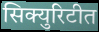
सिक्युरिटीत